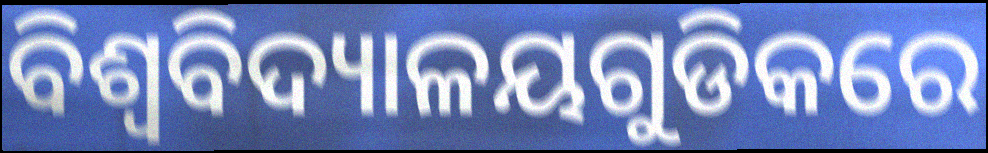
ବିଶ୍ୱବିଦ୍ୟାଳୟଗୁଡିକରେ